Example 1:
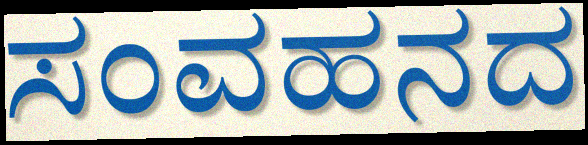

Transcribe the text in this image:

ಸಂವಹನದ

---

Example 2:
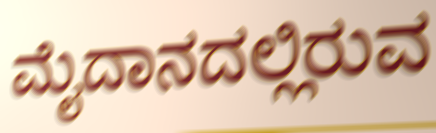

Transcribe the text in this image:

ಮೈದಾನದಲ್ಲಿರುವ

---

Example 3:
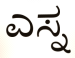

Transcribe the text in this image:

ಎಸ್ನ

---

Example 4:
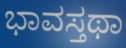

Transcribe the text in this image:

ಭಾವಸ್ತಥಾ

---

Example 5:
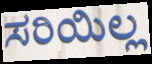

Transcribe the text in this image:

ಸರಿಯಿಲ್ಲ